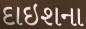
દાઇશના